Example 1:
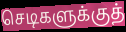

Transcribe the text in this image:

செடிகளுக்குத்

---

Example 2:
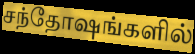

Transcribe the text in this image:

சந்தோஷங்களில்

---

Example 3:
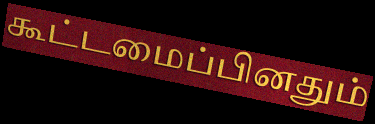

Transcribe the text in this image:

கூட்டமைப்பினதும்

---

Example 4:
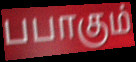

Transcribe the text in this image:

பபாகும்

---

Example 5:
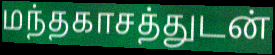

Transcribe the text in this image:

மந்தகாசத்துடன்